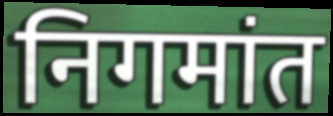
निगमांत